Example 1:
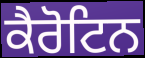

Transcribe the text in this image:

ਕੈਰੋਟਿਨ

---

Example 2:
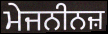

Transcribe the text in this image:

ਮੇਜਨੀਨਜ਼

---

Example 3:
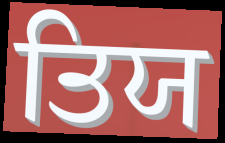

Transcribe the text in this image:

ਤਿਯ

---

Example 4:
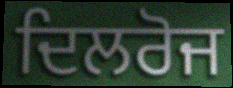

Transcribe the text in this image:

ਦਿਲਰੋਜ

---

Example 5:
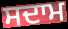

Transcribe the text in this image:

ਸਦਾਮ